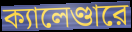
ক্যালেণ্ডারে